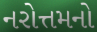
નરોત્તમનો